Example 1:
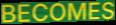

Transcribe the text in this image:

BECOMES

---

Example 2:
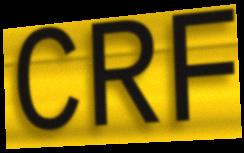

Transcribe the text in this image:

CRF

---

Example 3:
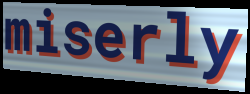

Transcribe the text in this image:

miserly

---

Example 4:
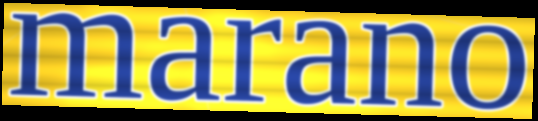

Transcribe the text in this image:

marano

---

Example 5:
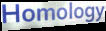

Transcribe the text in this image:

Homology